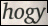
hogy